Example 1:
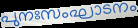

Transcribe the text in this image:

പുനഃസംഘാടനം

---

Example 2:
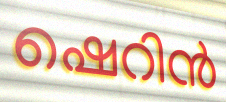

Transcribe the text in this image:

ഷെറിൻ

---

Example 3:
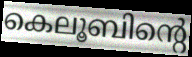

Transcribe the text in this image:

കെലൂബിന്റെ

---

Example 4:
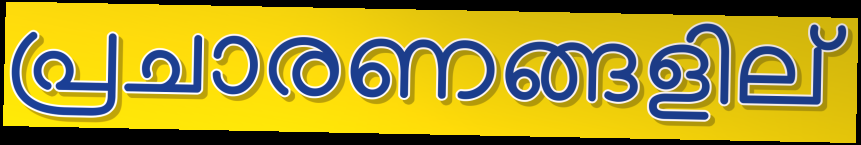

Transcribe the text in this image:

പ്രചാരണങ്ങളില്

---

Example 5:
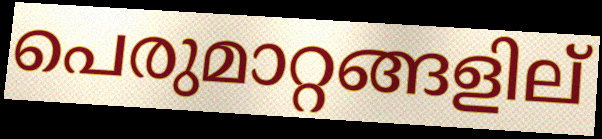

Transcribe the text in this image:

പെരുമാറ്റങ്ങളില്